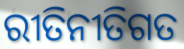
ରୀତିନୀତିଗତ